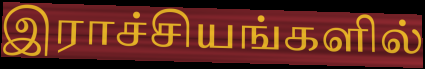
இராச்சியங்களில்